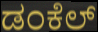
ಡಂಕೆಲ್